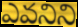
ఎవనిని